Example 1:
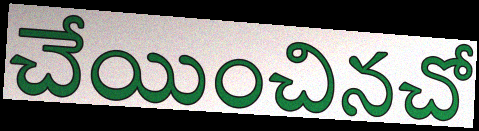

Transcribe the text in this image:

చేయించినచో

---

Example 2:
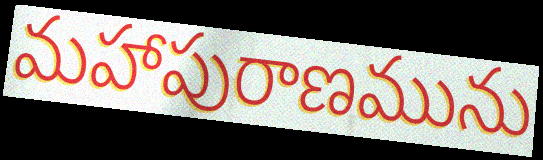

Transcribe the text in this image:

మహాపురాణమును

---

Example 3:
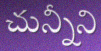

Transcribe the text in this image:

చున్నీని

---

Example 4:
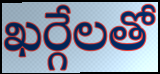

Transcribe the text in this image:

ఖర్గేలతో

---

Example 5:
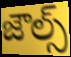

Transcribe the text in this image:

జౌల్స్